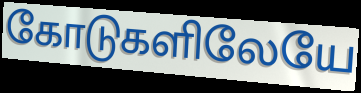
கோடுகளிலேயே